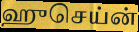
ஹுசெய்ன்